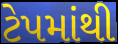
ટેપમાંથી